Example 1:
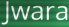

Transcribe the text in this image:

Jwara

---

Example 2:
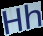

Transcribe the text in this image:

Hh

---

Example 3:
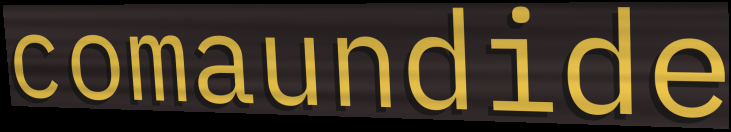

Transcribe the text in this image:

comaundide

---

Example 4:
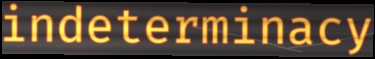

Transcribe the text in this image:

indeterminacy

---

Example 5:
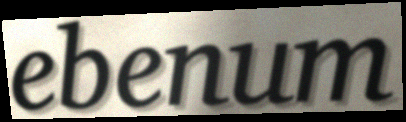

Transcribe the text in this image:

ebenum